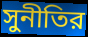
সুনীতির